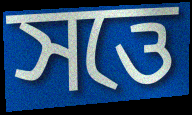
সত্তে